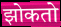
झोकतो